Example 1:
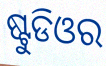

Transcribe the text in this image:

ଷ୍ଟୁଡିଓର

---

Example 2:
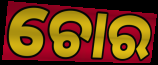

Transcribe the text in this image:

ଚୋର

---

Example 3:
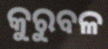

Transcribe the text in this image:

କୁରୁବଳ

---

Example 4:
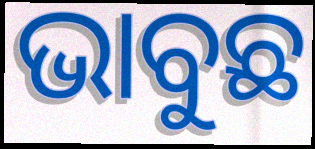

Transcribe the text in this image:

ଭାବୁଛ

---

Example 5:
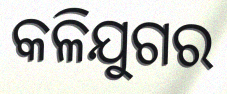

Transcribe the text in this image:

କଳିଯୁଗର